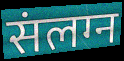
संलग्‍न